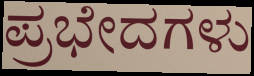
ಪ್ರಭೇದಗಳು